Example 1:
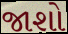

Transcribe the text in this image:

જાશો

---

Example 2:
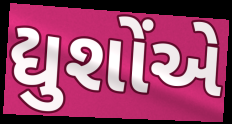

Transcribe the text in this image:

દ્યુશોંએ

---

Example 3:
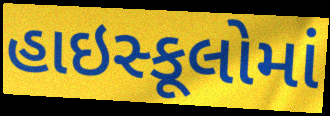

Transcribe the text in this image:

હાઇસ્કૂલોમાં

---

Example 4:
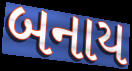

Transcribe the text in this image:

બનાય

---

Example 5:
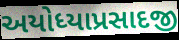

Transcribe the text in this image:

અયોધ્યાપ્રસાદજી